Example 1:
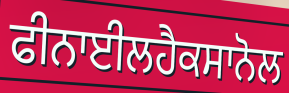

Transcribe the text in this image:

ਫੀਨਾਈਲਹੈਕਸਾਨੋਲ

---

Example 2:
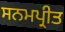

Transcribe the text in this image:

ਸਨਮਪ੍ਰੀਤ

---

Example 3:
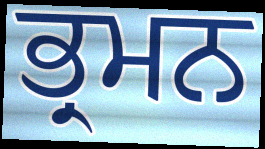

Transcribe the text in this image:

ਭ੍ਰਮਨ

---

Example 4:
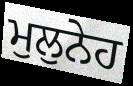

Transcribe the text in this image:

ਮੁਲੁਨੇਹ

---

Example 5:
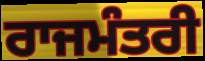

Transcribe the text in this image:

ਰਾਜਮੰਤਰੀ